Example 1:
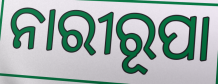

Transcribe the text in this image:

ନାରୀରୂପା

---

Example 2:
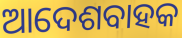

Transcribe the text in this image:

ଆଦେଶବାହକ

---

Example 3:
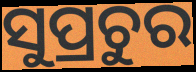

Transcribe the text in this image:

ସୁପ୍ରଚୁର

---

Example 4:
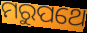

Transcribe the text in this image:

ମରୁପଥେ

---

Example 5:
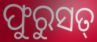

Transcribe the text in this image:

ଫୁରୁସତ୍